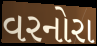
વરનોરા